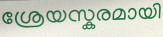
ശ്രേയസ്കരമായി